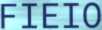
FIEIO